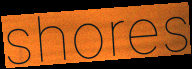
shores